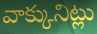
వాక్కునిట్లు